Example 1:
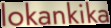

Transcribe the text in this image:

lokankika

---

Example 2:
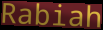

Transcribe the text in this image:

Rabiah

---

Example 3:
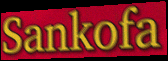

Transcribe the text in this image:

Sankofa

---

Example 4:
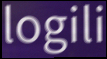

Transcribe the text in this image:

logili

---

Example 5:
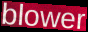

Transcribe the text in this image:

blower